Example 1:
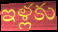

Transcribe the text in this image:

ఇళ్లకు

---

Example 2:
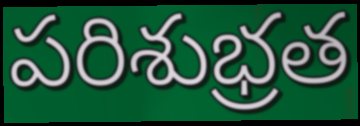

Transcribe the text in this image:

పరిశుభ్రత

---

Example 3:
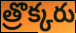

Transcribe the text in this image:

త్రొక్కరు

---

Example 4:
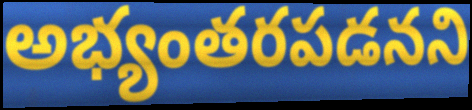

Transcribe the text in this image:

అభ్యంతరపడనని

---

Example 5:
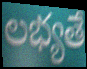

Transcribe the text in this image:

లభ్యతే